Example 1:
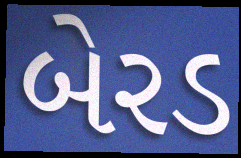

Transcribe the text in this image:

બેરડ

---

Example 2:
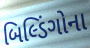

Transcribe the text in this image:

બિલ્ડિંગોના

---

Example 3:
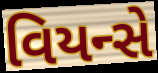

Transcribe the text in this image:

વિયન્સે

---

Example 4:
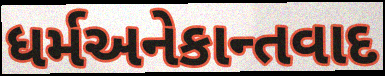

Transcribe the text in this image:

ધર્મઅનેકાન્તવાદ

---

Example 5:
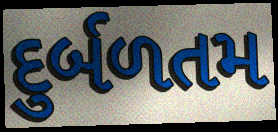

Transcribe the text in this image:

દુર્બળતમ